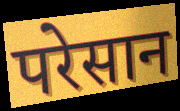
परेसान